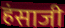
हंसाजी